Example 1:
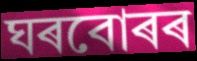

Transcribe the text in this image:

ঘৰবোৰৰ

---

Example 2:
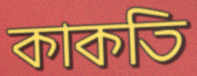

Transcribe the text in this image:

কাকতি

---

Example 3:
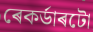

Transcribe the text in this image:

ৰেকৰ্ডাৰটো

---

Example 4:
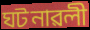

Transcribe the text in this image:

ঘটনাৱলী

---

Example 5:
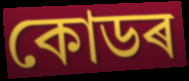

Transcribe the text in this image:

কোডৰ